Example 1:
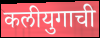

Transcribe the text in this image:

कलीयुगाची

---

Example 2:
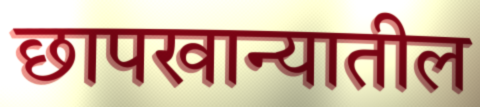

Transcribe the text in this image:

छापखान्यातील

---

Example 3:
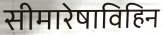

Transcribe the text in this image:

सीमारेषाविहिन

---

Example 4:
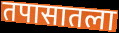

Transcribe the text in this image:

तपासातला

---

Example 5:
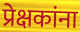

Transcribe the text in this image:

प्रेक्षकांना